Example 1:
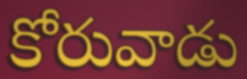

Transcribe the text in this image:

కోరువాడు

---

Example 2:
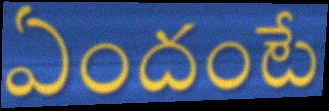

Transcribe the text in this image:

ఏందంటే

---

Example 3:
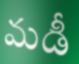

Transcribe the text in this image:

మడీ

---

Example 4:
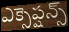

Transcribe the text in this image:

ఎక్సెప్షన్స్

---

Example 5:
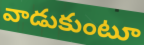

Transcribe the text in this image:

వాడుకుంటూ